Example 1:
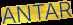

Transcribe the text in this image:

ANTAR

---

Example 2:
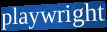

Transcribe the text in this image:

playwright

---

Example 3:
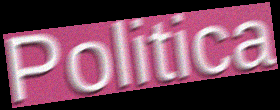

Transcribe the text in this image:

Politica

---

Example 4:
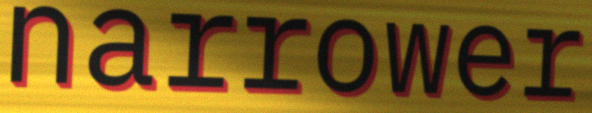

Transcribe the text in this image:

narrower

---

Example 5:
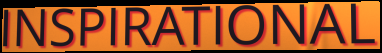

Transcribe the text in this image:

INSPIRATIONAL